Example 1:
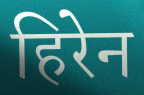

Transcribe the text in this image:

हिरेन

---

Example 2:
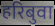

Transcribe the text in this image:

हरिबुवा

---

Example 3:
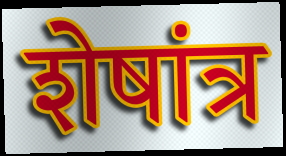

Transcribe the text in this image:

शेषांत्र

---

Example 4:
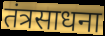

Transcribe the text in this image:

तंत्रसाधना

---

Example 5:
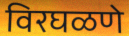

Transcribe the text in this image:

विरघळणे